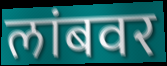
लांबवर